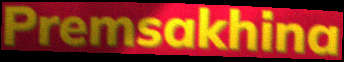
Premsakhina